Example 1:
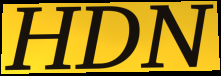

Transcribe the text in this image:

HDN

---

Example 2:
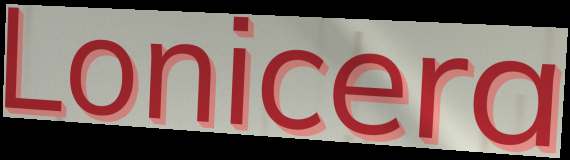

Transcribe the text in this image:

Lonicera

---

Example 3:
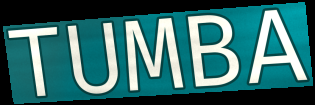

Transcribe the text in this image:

TUMBA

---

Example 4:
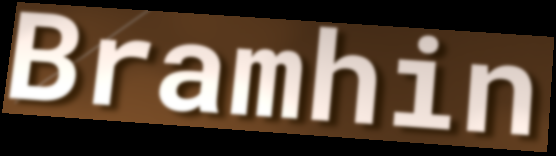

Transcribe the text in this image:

Bramhin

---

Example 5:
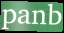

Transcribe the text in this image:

panb